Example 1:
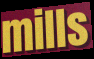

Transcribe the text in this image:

mills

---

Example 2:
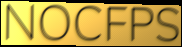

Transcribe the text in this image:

NOCFPS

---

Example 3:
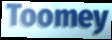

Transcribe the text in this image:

Toomey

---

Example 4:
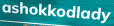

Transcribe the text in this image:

ashokkodlady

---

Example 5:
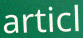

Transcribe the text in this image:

articl